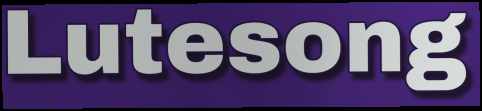
Lutesong